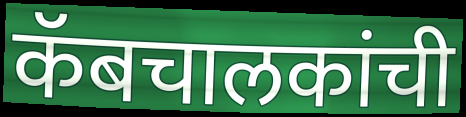
कॅबचालकांची